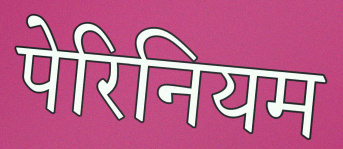
पेरिनियम